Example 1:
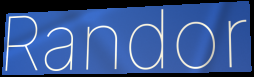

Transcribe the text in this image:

Randor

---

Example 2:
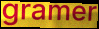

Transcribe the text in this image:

gramer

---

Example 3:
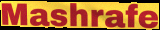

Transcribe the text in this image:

Mashrafe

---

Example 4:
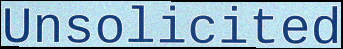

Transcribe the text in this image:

Unsolicited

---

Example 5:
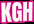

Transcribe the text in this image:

KGH